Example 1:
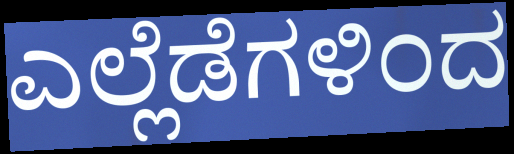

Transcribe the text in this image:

ಎಲ್ಲೆಡೆಗಳಿಂದ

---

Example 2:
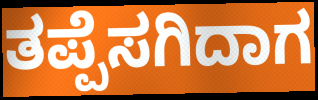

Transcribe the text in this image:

ತಪ್ಪೆಸಗಿದಾಗ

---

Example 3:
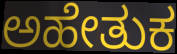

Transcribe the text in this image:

ಅಹೇತುಕ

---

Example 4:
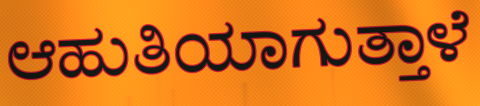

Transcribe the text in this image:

ಆಹುತಿಯಾಗುತ್ತಾಳೆ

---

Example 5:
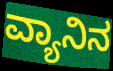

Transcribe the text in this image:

ವ್ಯಾನಿನ